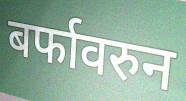
बर्फावरुन